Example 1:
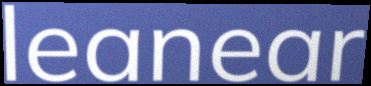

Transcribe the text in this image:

leanear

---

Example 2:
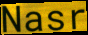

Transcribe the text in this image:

Nasr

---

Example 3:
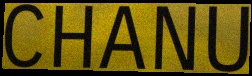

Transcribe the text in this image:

CHANU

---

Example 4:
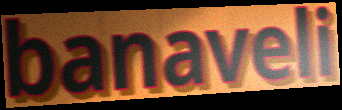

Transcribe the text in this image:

banaveli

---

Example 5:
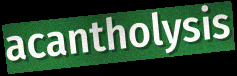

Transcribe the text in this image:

acantholysis